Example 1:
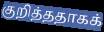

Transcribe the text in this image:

குறித்ததாகக்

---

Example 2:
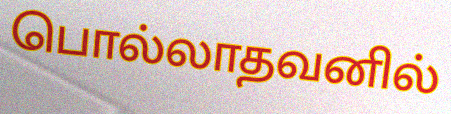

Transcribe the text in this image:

பொல்லாதவனில்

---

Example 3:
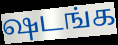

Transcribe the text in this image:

ஷடங்க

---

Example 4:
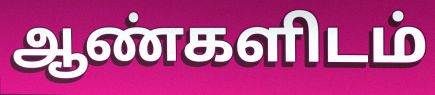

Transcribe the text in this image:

ஆண்களிடம்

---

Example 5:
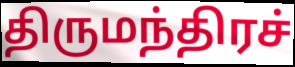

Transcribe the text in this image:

திருமந்திரச்